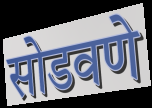
सोडवणे